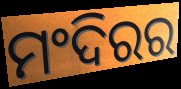
ମଂଦିରର